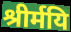
श्रीर्मयि